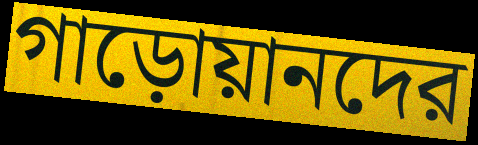
গাড়োয়ানদের